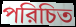
পরিচিত